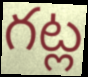
గట్ల